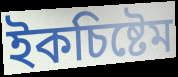
ইকচিষ্টেম